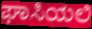
ಘಾಸಿಯಲಿ